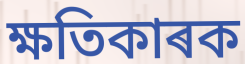
ক্ষতিকাৰক